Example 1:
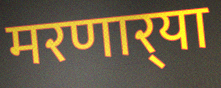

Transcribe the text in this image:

मरणार्‍या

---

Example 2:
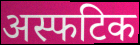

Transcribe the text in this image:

अस्फटिक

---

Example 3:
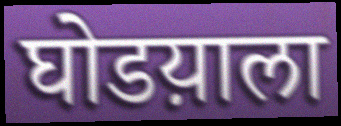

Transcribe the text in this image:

घोडय़ाला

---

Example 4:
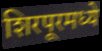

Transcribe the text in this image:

शिरपूरमध्ये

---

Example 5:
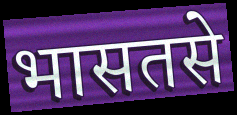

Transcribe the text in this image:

भासतसे